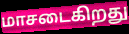
மாசடைகிறது